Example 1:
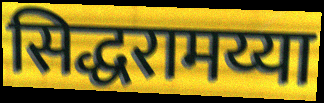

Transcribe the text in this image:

सिद्धरामय्या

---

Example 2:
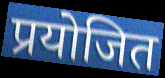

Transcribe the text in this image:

प्रयोजित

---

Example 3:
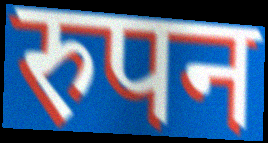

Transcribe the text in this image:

रुपन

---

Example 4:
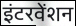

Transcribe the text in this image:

इंटरवेंशन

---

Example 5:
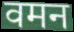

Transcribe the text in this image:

वमन